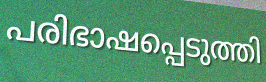
പരിഭാഷപ്പെടുത്തി